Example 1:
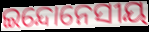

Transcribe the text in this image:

ଇନ୍ଦୋନେସୀୟ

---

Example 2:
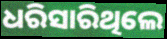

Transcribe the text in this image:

ଧରିସାରିଥିଲେ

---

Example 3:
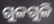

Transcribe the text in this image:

ଗୁଳଗୁଳି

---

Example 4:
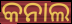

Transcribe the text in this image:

କନାଲ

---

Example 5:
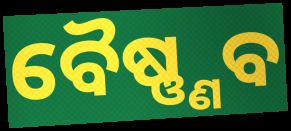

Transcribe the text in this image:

ବୈଷ୍ଣ୍ଣବ